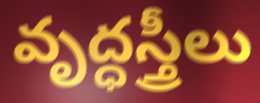
వృద్ధస్త్రీలు